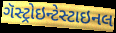
ગૅસ્ટ્રોઇન્ટેસ્ટાઇનલ